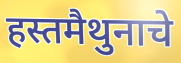
हस्तमैथुनाचे